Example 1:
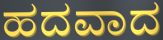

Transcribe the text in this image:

ಹದವಾದ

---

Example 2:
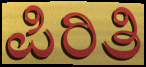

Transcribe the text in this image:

ಪಿರಿತಿ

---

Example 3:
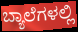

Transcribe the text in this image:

ಬ್ಯಾಲೆಗಳಲ್ಲಿ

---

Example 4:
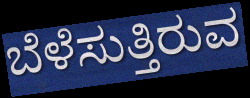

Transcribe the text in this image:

ಬೆಳೆಸುತ್ತಿರುವ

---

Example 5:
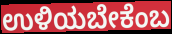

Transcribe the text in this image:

ಉಳಿಯಬೇಕೆಂಬ